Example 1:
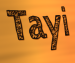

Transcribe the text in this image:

Tayi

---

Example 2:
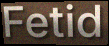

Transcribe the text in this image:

Fetid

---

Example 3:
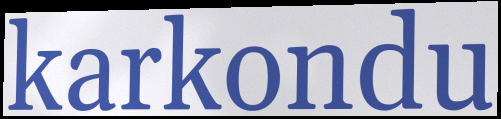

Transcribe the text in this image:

karkondu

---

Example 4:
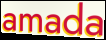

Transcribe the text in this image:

amada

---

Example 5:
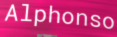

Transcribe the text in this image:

Alphonso